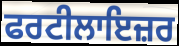
ਫਰਟੀਲਾਇਜ਼ਰ